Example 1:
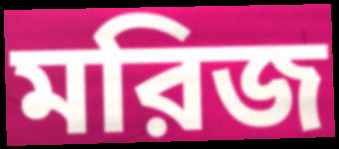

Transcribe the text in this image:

মরিজ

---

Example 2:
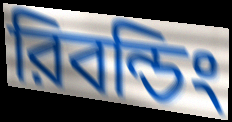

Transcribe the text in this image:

রিবন্ডিং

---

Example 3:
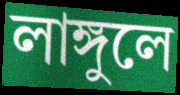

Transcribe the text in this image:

লাঙ্গুলে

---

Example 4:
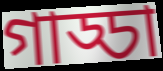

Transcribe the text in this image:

গাড্ডা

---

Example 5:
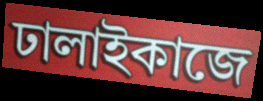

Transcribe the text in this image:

ঢালাইকাজে